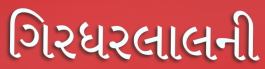
ગિરધરલાલની